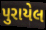
પુરાયેલ